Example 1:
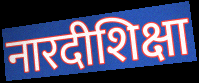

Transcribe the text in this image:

नारदीशिक्षा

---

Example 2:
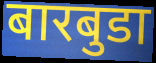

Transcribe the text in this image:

बारबुडा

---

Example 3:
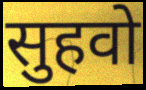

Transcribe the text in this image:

सुहवो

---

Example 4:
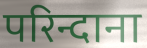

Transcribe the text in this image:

परिन्दाना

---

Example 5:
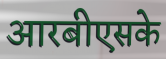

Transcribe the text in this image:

आरबीएसके